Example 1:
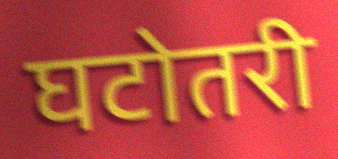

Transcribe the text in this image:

घटोतरी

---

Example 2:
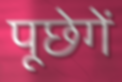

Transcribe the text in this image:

पूछेगें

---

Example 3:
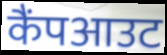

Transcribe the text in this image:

कैंपआउट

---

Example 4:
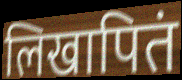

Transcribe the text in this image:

लिखापितं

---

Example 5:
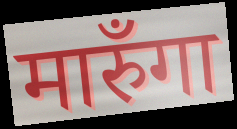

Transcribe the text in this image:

मारुँगा